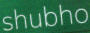
shubho